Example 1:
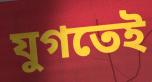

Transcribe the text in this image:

যুগতেই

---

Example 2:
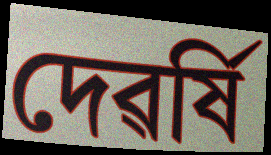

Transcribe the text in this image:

দেৱৰ্ষি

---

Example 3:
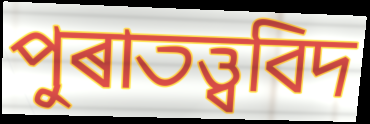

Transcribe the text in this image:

পুৰাতত্ত্ববিদ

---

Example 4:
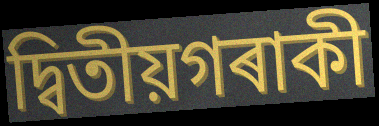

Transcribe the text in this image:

দ্বিতীয়গৰাকী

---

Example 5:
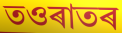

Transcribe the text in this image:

তওৰাতৰ